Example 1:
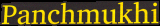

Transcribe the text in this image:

Panchmukhi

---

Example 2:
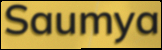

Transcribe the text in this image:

Saumya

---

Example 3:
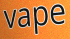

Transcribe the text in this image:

vape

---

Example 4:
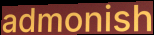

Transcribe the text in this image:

admonish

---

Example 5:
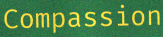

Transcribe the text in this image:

Compassion